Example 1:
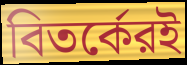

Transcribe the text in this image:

বিতর্কেরই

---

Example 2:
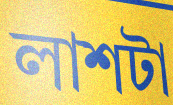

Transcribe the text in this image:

লাশটা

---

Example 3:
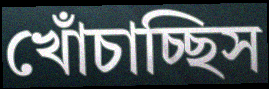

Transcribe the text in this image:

খোঁচাচ্ছিস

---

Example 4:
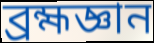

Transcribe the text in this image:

ব্রহ্মজ্ঞান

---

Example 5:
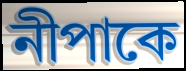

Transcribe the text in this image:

নীপাকে